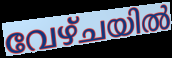
വേഴ്ചയിൽ